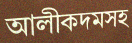
আলীকদমসহ